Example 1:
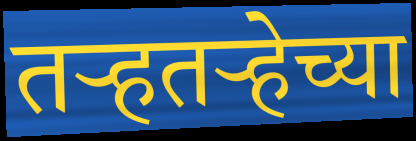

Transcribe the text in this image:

तऱ्हतऱ्हेच्या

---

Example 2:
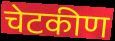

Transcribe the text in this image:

चेटकीण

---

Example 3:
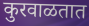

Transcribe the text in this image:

कुरवाळतात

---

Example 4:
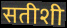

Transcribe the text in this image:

सतीशी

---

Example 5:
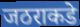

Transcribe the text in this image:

जठराकडे